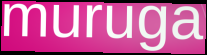
muruga